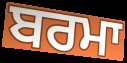
ਬਰਮਾ